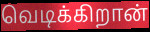
வெடிக்கிறான்